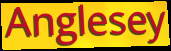
Anglesey